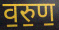
व॒रु॒ण॒